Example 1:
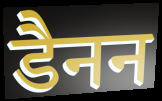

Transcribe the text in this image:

डैनन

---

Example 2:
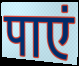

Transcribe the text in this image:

पाएं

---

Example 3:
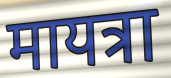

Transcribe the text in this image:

मायत्रा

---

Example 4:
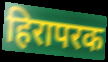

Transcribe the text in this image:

हिरापरक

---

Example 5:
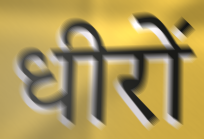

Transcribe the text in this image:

धीरों